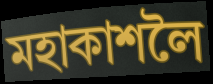
মহাকাশলৈ